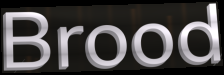
Brood